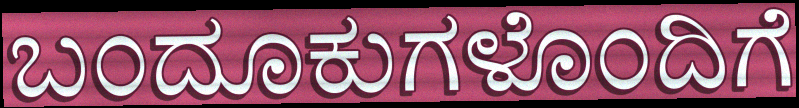
ಬಂದೂಕುಗಳೊಂದಿಗೆ